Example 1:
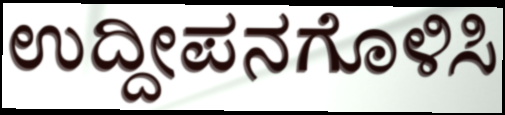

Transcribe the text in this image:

ಉದ್ದೀಪನಗೊಳಿಸಿ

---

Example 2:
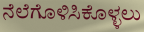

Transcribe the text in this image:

ನೆಲೆಗೊಳಿಸಿಕೊಳ್ಳಲು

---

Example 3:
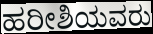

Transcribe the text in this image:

ಹರೀಶಿಯವರು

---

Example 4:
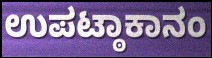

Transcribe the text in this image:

ಉಪಟ್ಠಾಕಾನಂ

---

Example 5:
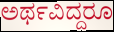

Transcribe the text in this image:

ಅರ್ಥವಿದ್ದರೂ